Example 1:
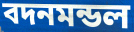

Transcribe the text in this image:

বদনমন্ডল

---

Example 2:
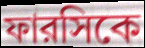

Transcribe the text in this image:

ফারসিকে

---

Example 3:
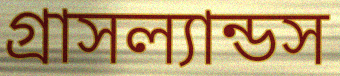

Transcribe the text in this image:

গ্রাসল্যান্ডস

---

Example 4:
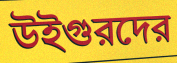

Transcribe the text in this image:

উইগুরদের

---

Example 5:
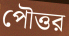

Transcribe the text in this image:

পৌত্তর